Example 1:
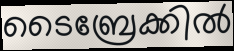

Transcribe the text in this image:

ടൈബ്രേക്കിൽ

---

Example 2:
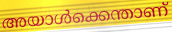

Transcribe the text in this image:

അയാൾക്കെന്താണ്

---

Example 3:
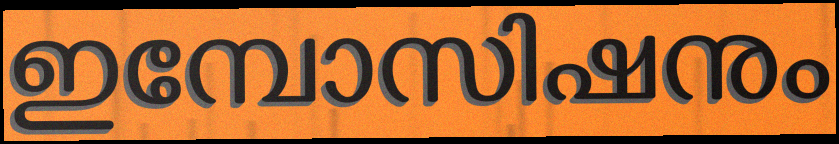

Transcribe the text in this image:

ഇമ്പോസിഷനും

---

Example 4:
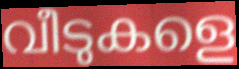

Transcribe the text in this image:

വീടുകളെ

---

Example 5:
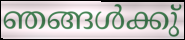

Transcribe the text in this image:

ഞങ്ങൾക്കു്